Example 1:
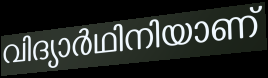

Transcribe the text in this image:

വിദ്യാർഥിനിയാണ്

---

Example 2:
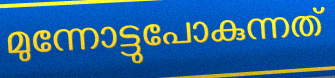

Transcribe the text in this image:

മുന്നോട്ടുപോകുന്നത്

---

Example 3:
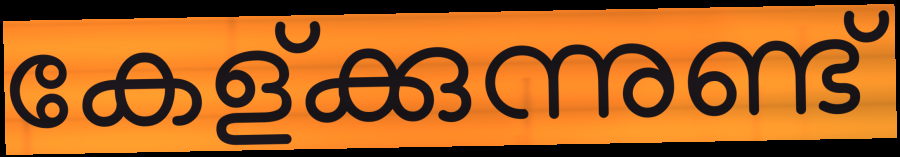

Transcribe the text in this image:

കേള്ക്കുന്നുണ്ട്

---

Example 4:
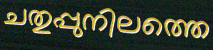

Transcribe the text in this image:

ചതുപ്പുനിലത്തെ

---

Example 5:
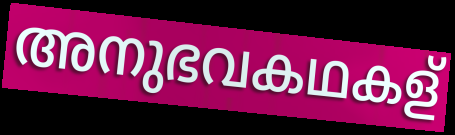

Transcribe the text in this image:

അനുഭവകഥകള്